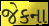
જેકના